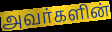
அவர்களின்